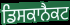
ਡਿਸਕਾਨੈਕਟ